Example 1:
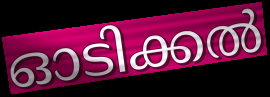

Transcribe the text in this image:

ഓടിക്കൽ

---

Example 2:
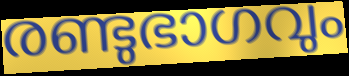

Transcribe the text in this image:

രണ്ടുഭാഗവും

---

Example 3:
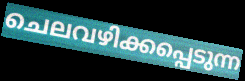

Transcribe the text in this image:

ചെലവഴിക്കപ്പെടുന്ന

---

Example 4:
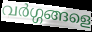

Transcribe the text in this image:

വർഗ്ഗങ്ങളെ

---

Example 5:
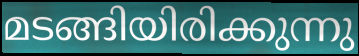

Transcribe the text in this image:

മടങ്ങിയിരിക്കുന്നു